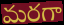
మరగా